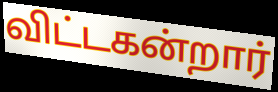
விட்டகன்றார்